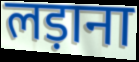
लड़ाना